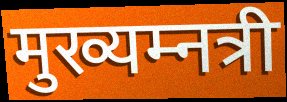
मुख्यम्नत्री